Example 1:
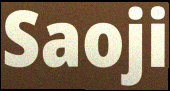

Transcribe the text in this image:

Saoji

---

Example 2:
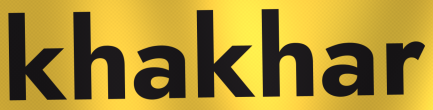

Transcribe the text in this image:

khakhar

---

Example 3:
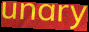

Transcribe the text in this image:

unary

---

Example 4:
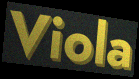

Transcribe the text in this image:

Viola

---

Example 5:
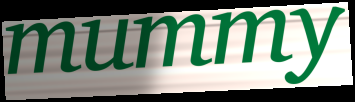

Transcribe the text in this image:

mummy